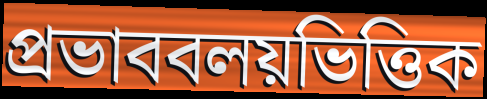
প্রভাববলয়ভিত্তিক